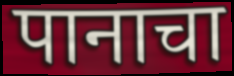
पानाचा